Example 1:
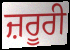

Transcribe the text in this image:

ਜ਼ਰੂਰੀ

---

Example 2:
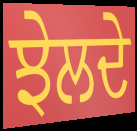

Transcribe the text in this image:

ਝੇਲਦੇ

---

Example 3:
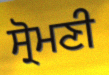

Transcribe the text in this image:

ਸ੍ਰੋਮਣੀ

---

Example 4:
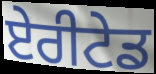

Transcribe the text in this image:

ਏਰੀਟੇਡ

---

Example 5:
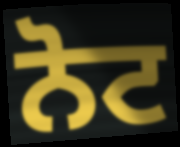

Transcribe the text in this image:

ਨੋਟ